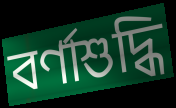
বর্ণাশুদ্ধি